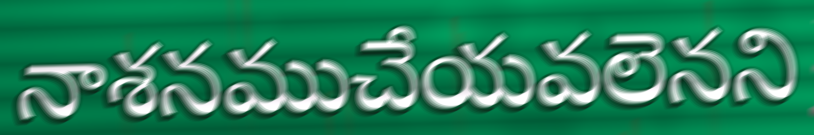
నాశనముచేయవలెనని